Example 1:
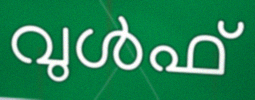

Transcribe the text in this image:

വുൾഫ്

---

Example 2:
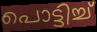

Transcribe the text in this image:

പൊട്ടിച്ച്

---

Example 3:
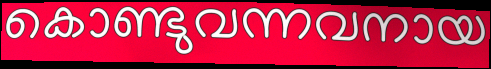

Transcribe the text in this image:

കൊണ്ടുവന്നവനായ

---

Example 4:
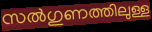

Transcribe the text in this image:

സൽഗുണത്തിലുള്ള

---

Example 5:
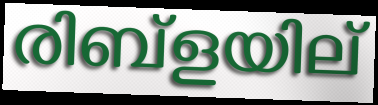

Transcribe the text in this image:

രിബ്ളയില്